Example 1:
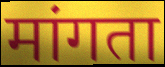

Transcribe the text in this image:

मांगता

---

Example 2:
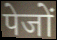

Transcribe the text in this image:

पेजों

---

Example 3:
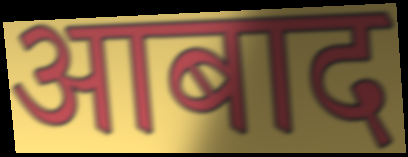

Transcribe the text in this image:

आबाद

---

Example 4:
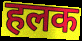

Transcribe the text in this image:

हलक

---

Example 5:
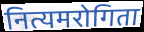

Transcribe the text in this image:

नित्यमरोगिता